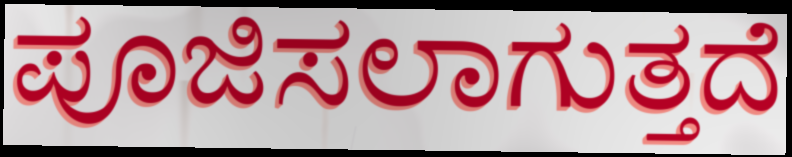
ಪೂಜಿಸಲಾಗುತ್ತದೆ